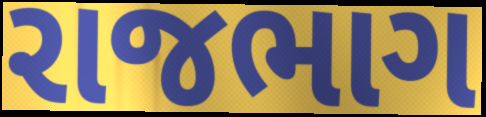
રાજભાગ